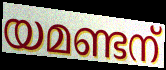
യമണ്ടന്